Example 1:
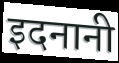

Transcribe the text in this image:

इदनानी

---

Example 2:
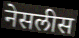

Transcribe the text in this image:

नेसलीस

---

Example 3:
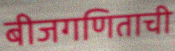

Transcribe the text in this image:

बीजगणिताची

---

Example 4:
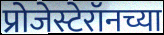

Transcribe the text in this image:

प्रोजेस्टेरॉनच्या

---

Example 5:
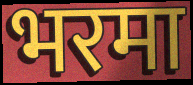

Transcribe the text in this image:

भरमा